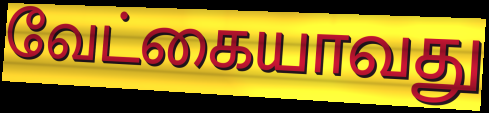
வேட்கையாவது